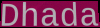
Dhada